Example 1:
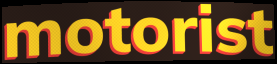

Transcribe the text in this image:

motorist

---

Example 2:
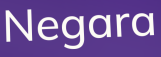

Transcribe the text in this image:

Negara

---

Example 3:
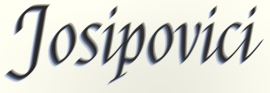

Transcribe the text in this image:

Josipovici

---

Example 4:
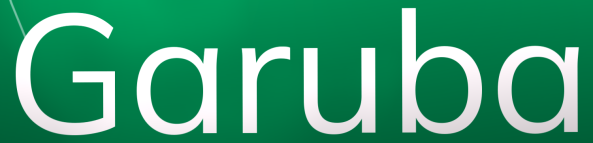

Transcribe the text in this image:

Garuba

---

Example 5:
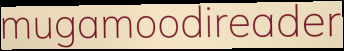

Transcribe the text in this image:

mugamoodireader